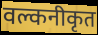
वल्कनीकृत